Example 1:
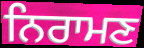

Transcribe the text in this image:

ਨਿਰਾਮਣ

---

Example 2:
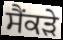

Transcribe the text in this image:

ਸੈਂਕੜੇ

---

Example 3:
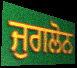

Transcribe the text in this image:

ਜੁਗਲੋਨ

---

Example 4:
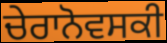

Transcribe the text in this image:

ਚੇਰਾਨੋਵਸਕੀ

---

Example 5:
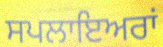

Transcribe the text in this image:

ਸਪਲਾਇਅਰਾਂ